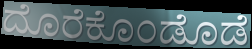
ದೊರೆಕೊಂಡೊಡೆ